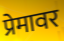
प्रेमावर